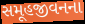
સમૂહજીવનના